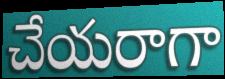
చేయరాగా